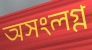
অসংলগ্ন